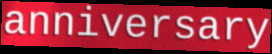
anniversary